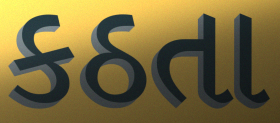
કઠતા